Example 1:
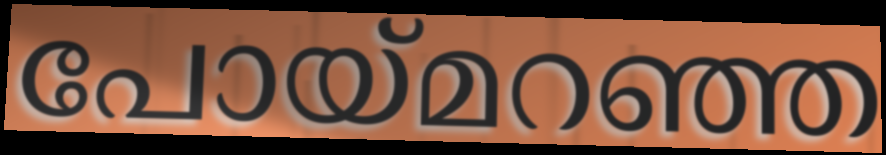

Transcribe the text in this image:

പോയ്മറഞ്ഞ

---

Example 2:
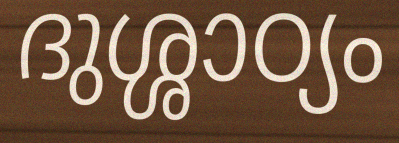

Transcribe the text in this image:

ദുശ്ശാഠ്യം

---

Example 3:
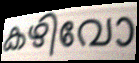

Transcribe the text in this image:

കഴിവോ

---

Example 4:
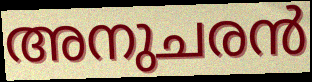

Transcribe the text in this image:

അനുചരൻ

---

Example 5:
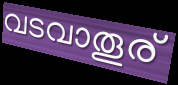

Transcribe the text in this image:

വടവാതൂര്